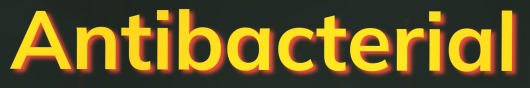
Antibacterial